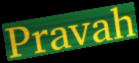
Pravah